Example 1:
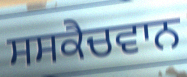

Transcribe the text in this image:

ਸਸਕੈਚਵਾਨ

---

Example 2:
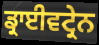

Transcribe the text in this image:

ਡ੍ਰਾਈਵਟ੍ਰੇਨ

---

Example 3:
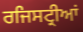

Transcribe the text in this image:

ਰਜਿਸਟ੍ਰੀਆਂ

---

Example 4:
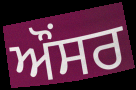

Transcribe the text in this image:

ਔਂਸਰ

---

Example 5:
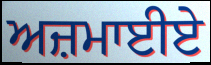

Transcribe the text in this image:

ਅਜ਼ਮਾਈਏ